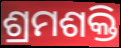
ଶ୍ରମଶକ୍ତି